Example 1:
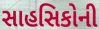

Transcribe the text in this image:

સાહસિકોની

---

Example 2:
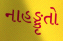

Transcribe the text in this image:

નાહઙ્કૃતો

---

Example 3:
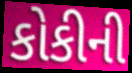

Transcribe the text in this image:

કોકીની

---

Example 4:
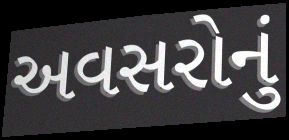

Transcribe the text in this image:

અવસરોનું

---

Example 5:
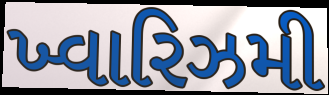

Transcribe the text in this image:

ખ્વારિઝમી